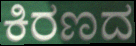
ಕಿರಣದ